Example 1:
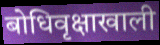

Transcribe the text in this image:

बोधिवृक्षाखाली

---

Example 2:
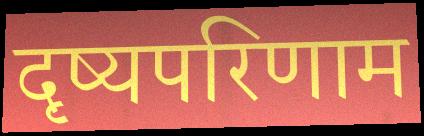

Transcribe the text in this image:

दृष्यपरिणाम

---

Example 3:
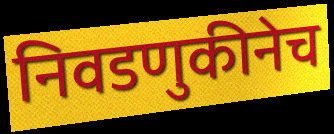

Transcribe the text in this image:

निवडणुकीनेच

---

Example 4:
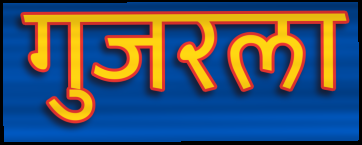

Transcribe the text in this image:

गुजरला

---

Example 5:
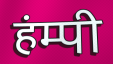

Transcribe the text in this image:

हंम्पी